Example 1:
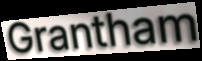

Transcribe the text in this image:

Grantham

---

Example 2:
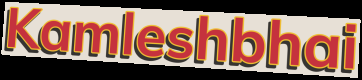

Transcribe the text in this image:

Kamleshbhai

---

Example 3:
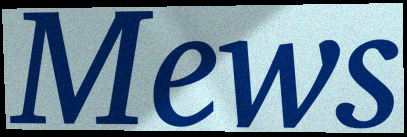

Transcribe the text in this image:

Mews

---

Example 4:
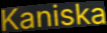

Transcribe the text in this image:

Kaniska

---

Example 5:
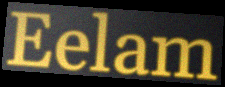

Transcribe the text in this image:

Eelam